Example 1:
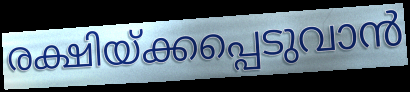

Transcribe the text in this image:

രക്ഷിയ്ക്കപ്പെടുവാൻ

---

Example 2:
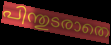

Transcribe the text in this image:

പിന്തുടരാതെ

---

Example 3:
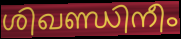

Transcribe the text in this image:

ശിഖണ്ഡിനീം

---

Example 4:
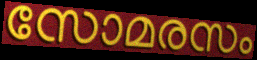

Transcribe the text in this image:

സോമരസം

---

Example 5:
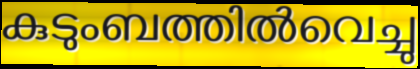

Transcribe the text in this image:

കുടുംബത്തിൽവെച്ചു